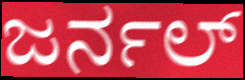
ಜರ್ನಲ್